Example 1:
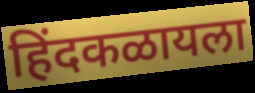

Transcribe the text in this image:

हिंदकळायला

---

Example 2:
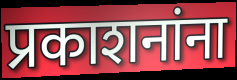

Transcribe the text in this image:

प्रकाशनांना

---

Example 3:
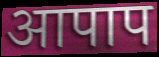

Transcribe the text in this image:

आपाप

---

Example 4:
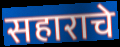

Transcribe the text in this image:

सहाराचे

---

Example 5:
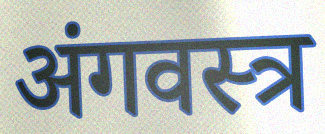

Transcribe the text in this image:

अंगवस्त्र